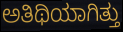
ಅತಿಥಿಯಾಗಿತ್ತು